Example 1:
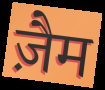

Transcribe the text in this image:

ज़ैम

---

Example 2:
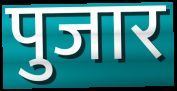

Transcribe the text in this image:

पुजार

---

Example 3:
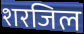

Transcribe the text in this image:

शरजिल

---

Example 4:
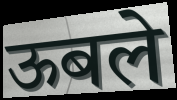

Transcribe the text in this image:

ऊबले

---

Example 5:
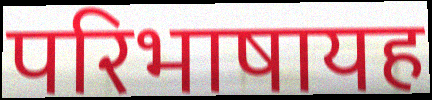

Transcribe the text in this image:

परिभाषायह